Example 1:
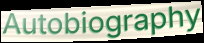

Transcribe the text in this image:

Autobiography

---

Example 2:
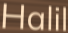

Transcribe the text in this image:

Halil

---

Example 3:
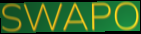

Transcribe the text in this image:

SWAPO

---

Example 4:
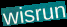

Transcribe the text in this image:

wisrun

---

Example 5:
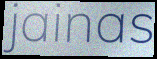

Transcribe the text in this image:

jainas